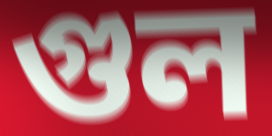
গুল